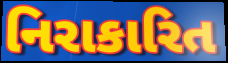
નિરાકારિત